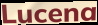
Lucena